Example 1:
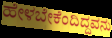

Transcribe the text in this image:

ಹೇಳಬೇಕೆಂದಿದ್ದವನು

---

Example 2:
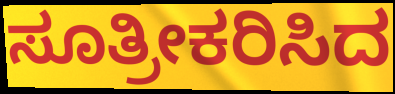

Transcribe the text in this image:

ಸೂತ್ರೀಕರಿಸಿದ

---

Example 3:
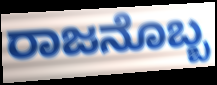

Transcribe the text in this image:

ರಾಜನೊಬ್ಬ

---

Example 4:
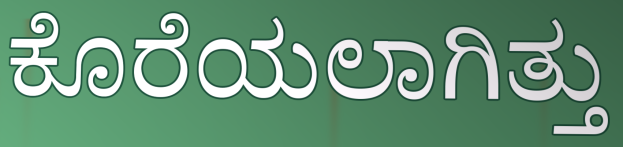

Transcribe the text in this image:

ಕೊರೆಯಲಾಗಿತ್ತು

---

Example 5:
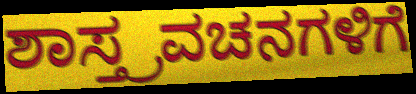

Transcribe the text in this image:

ಶಾಸ್ತ್ರವಚನಗಳಿಗೆ